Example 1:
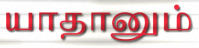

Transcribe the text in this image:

யாதானும்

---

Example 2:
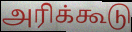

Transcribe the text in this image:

அரிக்கூடு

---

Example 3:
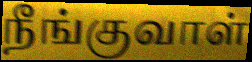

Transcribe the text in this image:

நீங்குவாள்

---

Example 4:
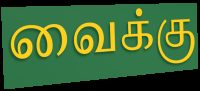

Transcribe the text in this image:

வைக்கு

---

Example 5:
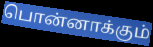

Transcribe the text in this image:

பொன்னாக்கும்